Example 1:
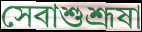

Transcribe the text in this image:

সেবাশুশ্রূষা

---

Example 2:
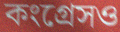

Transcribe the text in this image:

কংগ্রেসও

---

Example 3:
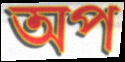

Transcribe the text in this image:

অপ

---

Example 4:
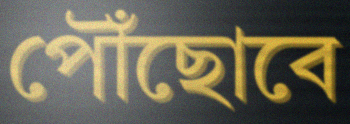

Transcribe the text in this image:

পৌঁছোবে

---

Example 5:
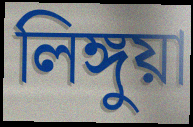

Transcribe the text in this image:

লিঙ্গুয়া